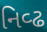
નિવ્ઢ